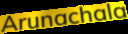
Arunachala